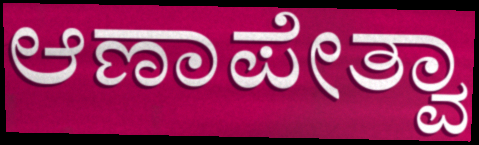
ಆಣಾಪೇತ್ವಾ